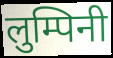
लुम्पिनी